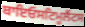
ਬਾਇਓਸਟਿਮੂਲੈਂਟਸ